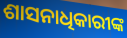
ଶାସନାଧିକାରୀଙ୍କ